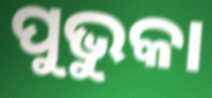
ପୁଭୁକା